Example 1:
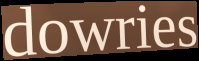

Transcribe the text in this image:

dowries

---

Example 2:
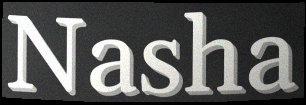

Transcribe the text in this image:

Nasha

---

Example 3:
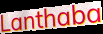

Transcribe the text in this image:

Lanthaba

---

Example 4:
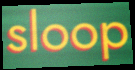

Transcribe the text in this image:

sloop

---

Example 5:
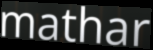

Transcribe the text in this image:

mathar